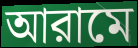
আরামে